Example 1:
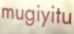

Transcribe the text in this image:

mugiyitu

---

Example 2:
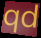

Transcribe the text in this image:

qd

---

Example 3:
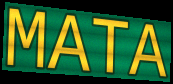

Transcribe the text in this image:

MATA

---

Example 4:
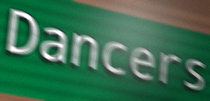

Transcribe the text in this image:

Dancers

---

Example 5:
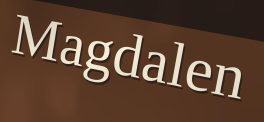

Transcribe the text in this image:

Magdalen